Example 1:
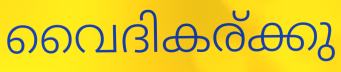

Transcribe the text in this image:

വൈദികര്ക്കു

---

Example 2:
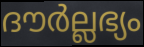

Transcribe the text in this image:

ദൗർല്ലഭ്യം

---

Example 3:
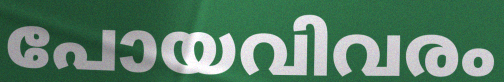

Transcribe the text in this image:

പോയവിവരം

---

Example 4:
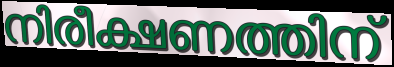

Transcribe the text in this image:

നിരീക്ഷണത്തിന്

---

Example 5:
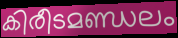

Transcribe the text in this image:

കിരീടമണ്ഡലം